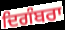
ਦਿਗੰਬਰਾ